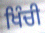
ਖਿੰਚੀ